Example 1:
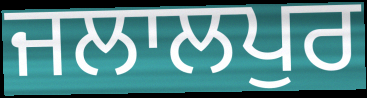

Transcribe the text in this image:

ਜਲਾਲਪੁਰ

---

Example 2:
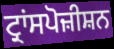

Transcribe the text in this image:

ਟ੍ਰਾਂਸਪੋਜ਼ੀਸ਼ਨ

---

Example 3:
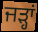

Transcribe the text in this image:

ਜੜ੍ਹਾਂ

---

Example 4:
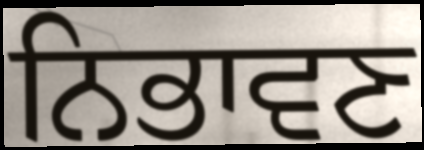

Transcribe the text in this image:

ਨਿਭਾਵਣ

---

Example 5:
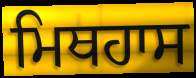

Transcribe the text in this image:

ਮਿਥਹਾਸ